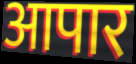
आपार